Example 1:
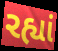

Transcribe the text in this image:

રહ્યાં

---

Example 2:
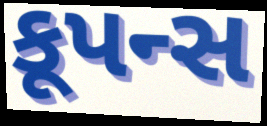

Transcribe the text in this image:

કૂપન્સ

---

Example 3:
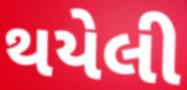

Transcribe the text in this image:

થયેલી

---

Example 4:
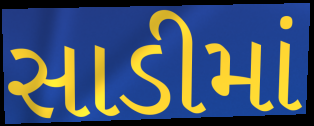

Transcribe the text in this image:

સાડીમાં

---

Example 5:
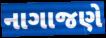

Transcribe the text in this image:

નાગાજણે